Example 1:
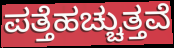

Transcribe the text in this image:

ಪತ್ತೆಹಚ್ಚುತ್ತವೆ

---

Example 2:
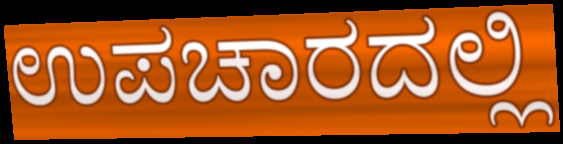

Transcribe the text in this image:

ಉಪಚಾರದಲ್ಲಿ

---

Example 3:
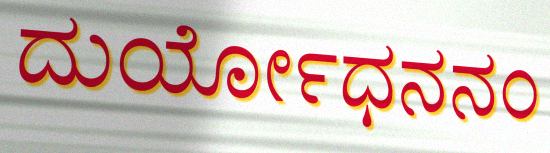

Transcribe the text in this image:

ದುರ್ಯೋಧನನಂ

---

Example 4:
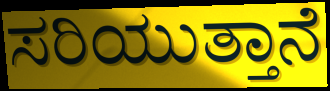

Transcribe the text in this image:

ಸರಿಯುತ್ತಾನೆ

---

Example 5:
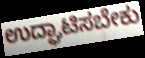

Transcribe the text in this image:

ಉದ್ಘಾಟಿಸಬೇಕು